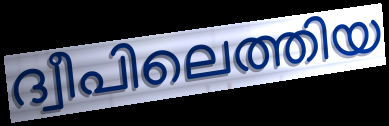
ദ്വീപിലെത്തിയ